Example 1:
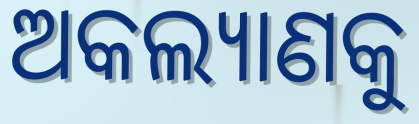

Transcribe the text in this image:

ଅକଲ୍ୟାଣକୁ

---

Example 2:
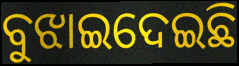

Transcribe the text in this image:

ବୁଝାଇଦେଇଛି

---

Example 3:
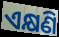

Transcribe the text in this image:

ଏକ୍ଷଣି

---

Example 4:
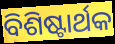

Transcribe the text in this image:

ବିଶିଷ୍ଟାର୍ଥକ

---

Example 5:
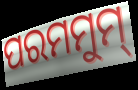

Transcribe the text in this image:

ପରମମୁମ୍